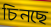
চিনছে